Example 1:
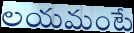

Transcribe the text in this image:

లయమంటే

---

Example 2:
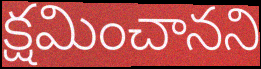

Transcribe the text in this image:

క్షమించానని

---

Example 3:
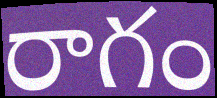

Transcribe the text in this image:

రాగం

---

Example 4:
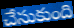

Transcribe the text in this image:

చేసుకుంది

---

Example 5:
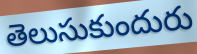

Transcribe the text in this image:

తెలుసుకుందురు